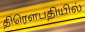
திரௌபதியில்